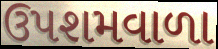
ઉપશમવાળા